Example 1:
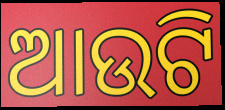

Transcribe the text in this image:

ଆଉଟି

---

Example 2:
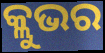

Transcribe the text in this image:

କ୍ଲୁଭର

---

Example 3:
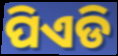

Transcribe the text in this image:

ପିଏଡି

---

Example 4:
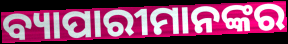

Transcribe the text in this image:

ବ୍ୟାପାରୀମାନଙ୍କର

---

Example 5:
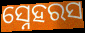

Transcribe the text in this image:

ସ୍ନେହରସ